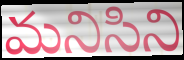
మనిసిని